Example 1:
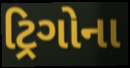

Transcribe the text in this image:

ટ્રિગોના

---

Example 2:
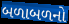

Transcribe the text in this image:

બળાબળનો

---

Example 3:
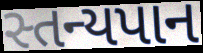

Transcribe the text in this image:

સ્તન્યપાન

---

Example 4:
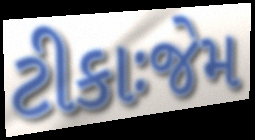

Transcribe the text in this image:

ટીકાઃજેમ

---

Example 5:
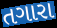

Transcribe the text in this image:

તગારા